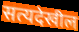
सत्यदेखील